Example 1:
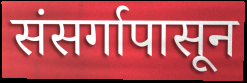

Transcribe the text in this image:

संसर्गापासून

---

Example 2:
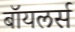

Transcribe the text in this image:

बॉयलर्स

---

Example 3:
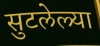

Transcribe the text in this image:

सुटलेल्या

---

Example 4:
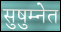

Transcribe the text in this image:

सुषुम्नेत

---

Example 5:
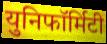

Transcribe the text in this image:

युनिफॉर्मिटी